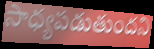
సాధ్యపడుతుందని